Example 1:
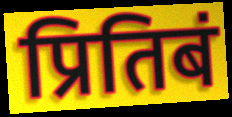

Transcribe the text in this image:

प्रितिबं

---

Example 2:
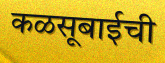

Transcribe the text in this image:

कळसूबाईची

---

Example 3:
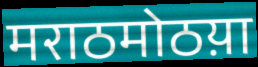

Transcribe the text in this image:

मराठमोठय़ा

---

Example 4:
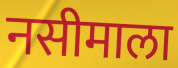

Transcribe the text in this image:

नसीमाला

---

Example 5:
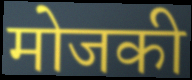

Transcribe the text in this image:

मोजकी